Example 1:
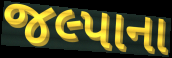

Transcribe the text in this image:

જલ્પાના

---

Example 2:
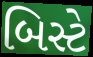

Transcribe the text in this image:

બિસ્ટે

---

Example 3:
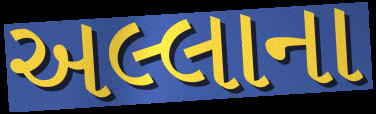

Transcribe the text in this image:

અલ્લાના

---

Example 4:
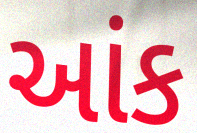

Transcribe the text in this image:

આંક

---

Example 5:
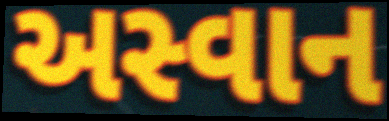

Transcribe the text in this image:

અસ્વાન